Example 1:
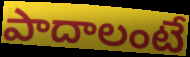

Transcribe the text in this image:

పాదాలంటే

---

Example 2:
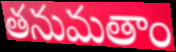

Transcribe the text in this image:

తనుమతాం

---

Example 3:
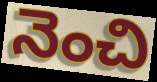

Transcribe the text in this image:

నెంచి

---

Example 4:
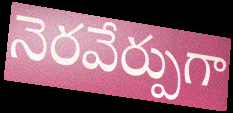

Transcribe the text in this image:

నెరవేర్పుగా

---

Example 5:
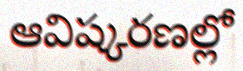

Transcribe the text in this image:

ఆవిష్కరణల్లో